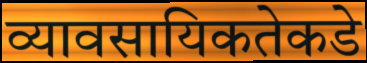
व्यावसायिकतेकडे